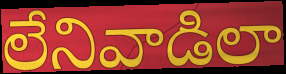
లేనివాడిలా